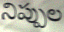
నిప్పుల